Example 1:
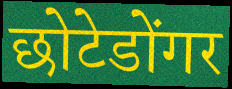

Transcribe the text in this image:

छोटेडोंगर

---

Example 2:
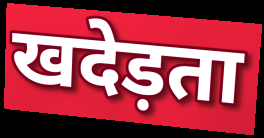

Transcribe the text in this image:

खदेड़ता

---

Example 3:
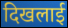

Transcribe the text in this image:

दिखलाई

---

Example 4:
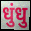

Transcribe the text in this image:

धुंधु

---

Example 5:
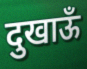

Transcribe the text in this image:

दुखाऊँ